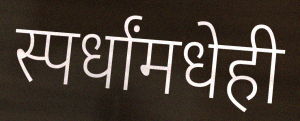
स्पर्धांमधेही